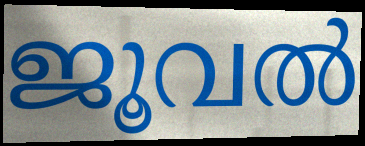
ജൂവൽ